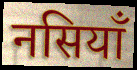
नसियाँ